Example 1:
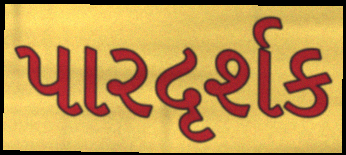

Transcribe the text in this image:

પારદૃર્શક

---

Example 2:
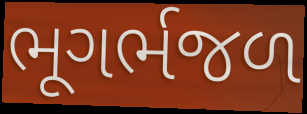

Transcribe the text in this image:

ભૂગર્ભજળ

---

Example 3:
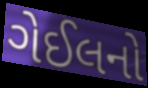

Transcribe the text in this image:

ગેઈલનો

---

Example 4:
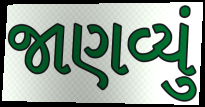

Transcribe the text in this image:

જાણવ્યું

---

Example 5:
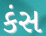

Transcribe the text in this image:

કંસ